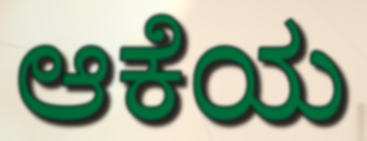
ಆಕೆಯ